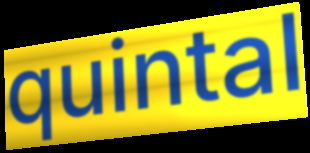
quintal